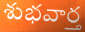
శుభవార్త